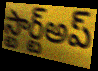
స్టార్ట్అప్